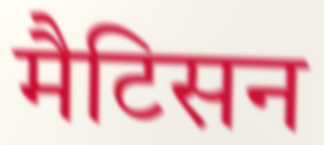
मैटिसन